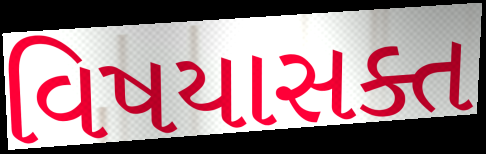
વિષયાસક્ત